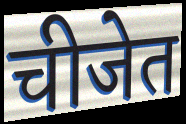
चीजेत